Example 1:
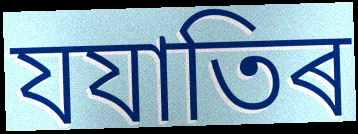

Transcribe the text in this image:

যযাতিৰ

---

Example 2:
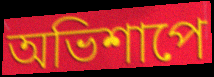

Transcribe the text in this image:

অভিশাপে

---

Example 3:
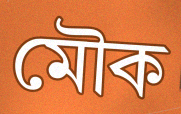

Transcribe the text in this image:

মৌক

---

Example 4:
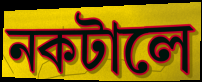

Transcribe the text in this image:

নকটালে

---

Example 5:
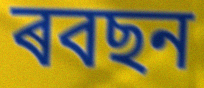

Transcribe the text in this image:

ৰবছন